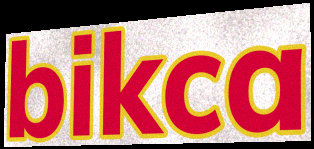
bikca